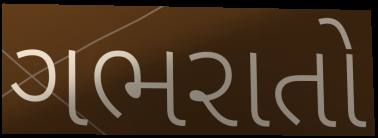
ગભરાતો